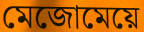
মেজোমেয়ে